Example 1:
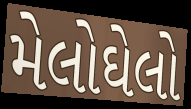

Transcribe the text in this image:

મેલોઘેલો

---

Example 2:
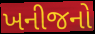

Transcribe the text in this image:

ખનીજનો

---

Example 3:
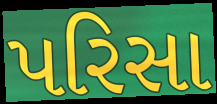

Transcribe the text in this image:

પરિસા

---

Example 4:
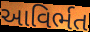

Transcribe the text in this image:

આવિર્ભત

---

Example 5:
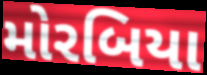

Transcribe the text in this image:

મોરબિયા